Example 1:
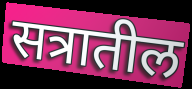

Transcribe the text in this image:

सत्रातील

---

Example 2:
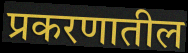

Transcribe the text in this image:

प्रकरणातील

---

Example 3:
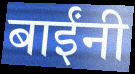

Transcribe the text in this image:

बाईंनी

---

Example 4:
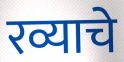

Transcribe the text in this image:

रव्याचे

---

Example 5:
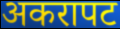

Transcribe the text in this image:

अकरापट